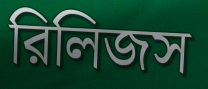
রিলিজস